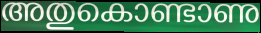
അതുകൊണ്ടാണു